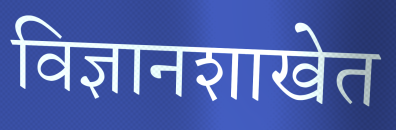
विज्ञानशाखेत